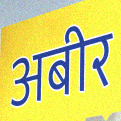
अबीर